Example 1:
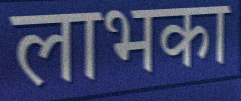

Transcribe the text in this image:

लाभका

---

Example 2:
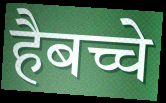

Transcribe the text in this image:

हैबच्चे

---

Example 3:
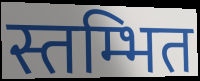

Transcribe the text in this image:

स्तम्भित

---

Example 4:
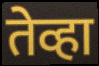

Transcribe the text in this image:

तेव्हा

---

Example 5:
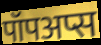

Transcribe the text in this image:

पॉपअप्स